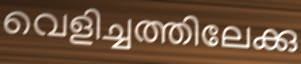
വെളിച്ചത്തിലേക്കു